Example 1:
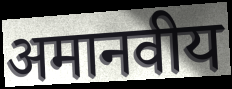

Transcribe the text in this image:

अमानवीय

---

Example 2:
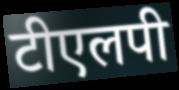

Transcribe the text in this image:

टीएलपी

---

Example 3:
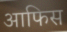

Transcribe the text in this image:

आफिस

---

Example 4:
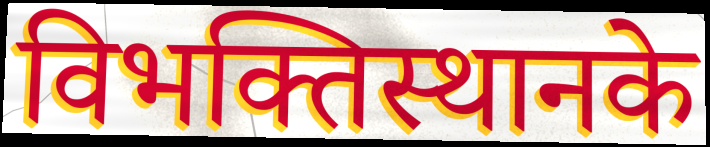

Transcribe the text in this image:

विभक्तिस्थानके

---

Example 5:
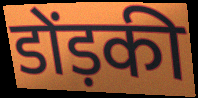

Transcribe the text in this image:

डोंड़की